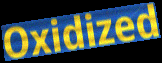
Oxidized